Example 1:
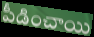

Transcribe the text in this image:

పీడించాయి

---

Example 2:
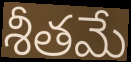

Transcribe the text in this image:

శీతమే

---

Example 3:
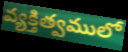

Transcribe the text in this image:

వ్యక్తిత్వములో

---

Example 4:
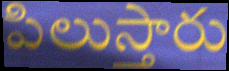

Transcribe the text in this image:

పిలుస్తారు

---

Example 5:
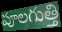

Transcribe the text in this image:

పూలగుత్తి